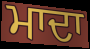
ਮਾਦਾ